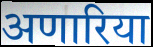
अणारिया